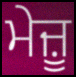
ਮੇਜ਼ੂ